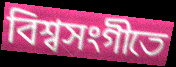
বিশ্বসংগীতে